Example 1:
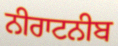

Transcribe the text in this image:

ਨੀਰਾਟਨੀਬ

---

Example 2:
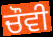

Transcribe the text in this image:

ਚੌਵੀ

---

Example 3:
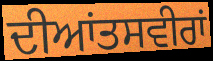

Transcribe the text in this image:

ਦੀਆਂਤਸਵੀਰਾਂ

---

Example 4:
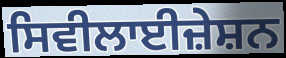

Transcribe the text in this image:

ਸਿਵੀਲਾਈਜ਼ੇਸ਼ਨ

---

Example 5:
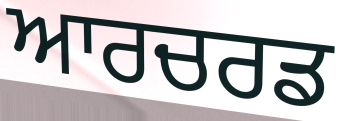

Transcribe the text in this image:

ਆਰਚਰਡ